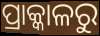
ପ୍ରାକ୍କାଳରୁ